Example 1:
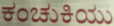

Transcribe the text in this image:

ಕಂಚುಕಿಯು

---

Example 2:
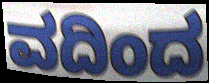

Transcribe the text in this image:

ವದಿಂದ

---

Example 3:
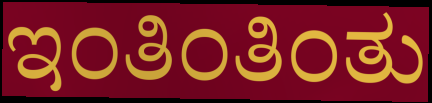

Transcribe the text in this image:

ಇಂತಿಂತಿಂತು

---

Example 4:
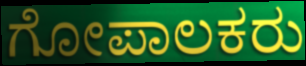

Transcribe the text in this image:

ಗೋಪಾಲಕರು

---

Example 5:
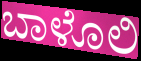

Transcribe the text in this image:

ಬಾಳೊಲಿ